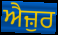
ਐਜ਼ੁਰ